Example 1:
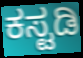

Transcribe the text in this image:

ಕಸ್ಟಡಿ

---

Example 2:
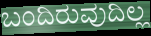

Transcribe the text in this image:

ಬಂದಿರುವುದಿಲ್ಲ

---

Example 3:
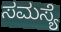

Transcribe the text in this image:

ಸಮಸ್ಯೆ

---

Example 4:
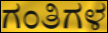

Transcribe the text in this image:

ಗಂತಿಗಳ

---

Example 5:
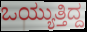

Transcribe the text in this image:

ಒಯ್ಯುತ್ತಿದ್ದ